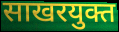
साखरयुक्त